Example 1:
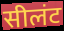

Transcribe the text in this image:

सीलंट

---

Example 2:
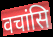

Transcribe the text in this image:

वचांसि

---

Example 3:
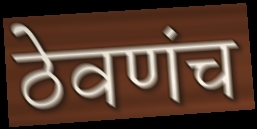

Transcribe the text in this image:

ठेवणंच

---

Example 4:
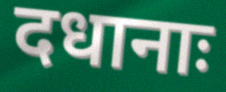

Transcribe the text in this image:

दधानाः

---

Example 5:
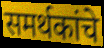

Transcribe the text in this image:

समर्थकांचे